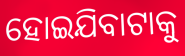
ହୋଇଯିବାଟାକୁ